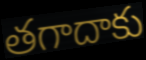
తగాదాకు